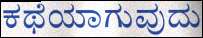
ಕಥೆಯಾಗುವುದು